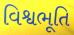
વિશ્વભૂતિ